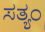
ಸತ್ಯಂ